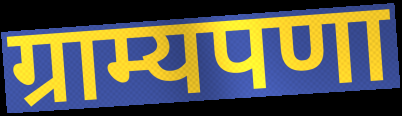
ग्राम्यपणा